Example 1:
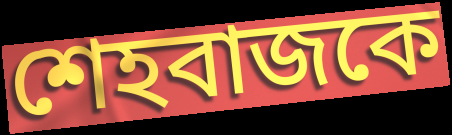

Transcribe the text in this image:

শেহবাজকে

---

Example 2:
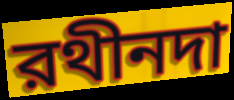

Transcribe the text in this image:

রথীনদা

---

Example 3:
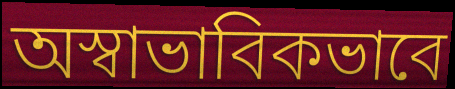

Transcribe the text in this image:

অস্বাভাবিকভাবে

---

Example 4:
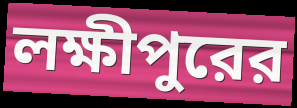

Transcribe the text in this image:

লক্ষীপুরের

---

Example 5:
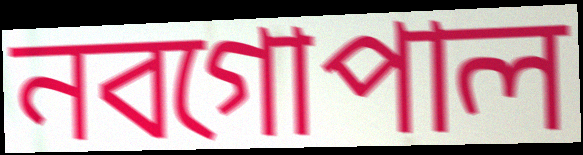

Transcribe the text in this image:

নবগোপাল